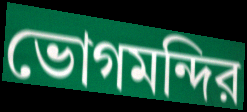
ভোগমন্দির